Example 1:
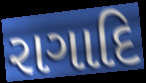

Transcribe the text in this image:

રાગાદિ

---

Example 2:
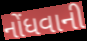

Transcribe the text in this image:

નોંધવાની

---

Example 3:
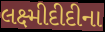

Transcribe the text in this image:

લક્ષ્મીદીદીના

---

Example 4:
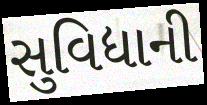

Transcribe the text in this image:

સુવિદ્યાની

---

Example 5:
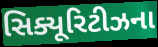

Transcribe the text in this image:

સિક્યૂરિટીઝના